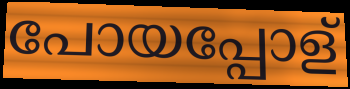
പോയപ്പോള്